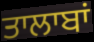
ਤਾਲਾਬਾਂ